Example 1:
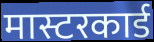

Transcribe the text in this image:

मास्टरकार्ड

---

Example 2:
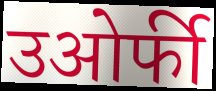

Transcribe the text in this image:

उओर्फी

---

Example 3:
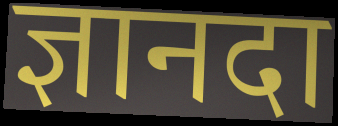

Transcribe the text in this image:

ज्ञानदा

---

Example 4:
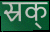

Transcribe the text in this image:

स्रक्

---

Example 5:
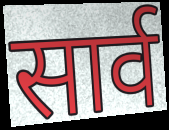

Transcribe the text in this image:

सार्व